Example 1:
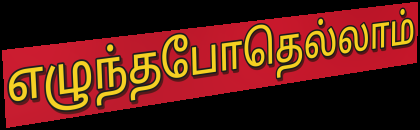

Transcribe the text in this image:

எழுந்தபோதெல்லாம்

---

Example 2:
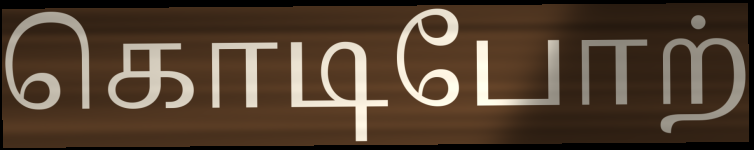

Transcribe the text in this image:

கொடிபோற்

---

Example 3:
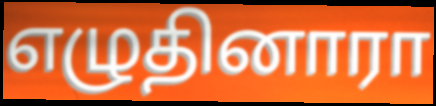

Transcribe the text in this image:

எழுதினாரா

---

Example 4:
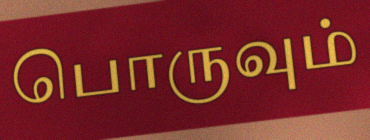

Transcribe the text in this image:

பொருவும்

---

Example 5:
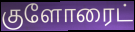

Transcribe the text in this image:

குளோரைட்